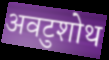
अवटुशोथ